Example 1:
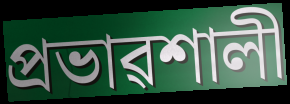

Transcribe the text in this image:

প্ৰভাৱশালী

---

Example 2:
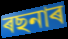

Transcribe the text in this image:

ৰছনাৰ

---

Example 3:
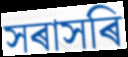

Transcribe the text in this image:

সৰাসৰি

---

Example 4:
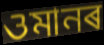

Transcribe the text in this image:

ওমানৰ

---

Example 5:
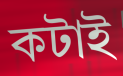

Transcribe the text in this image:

কটাই